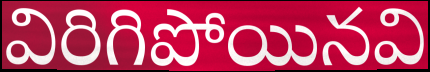
విరిగిపోయినవి